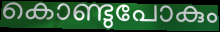
കൊണ്ടുപോകും